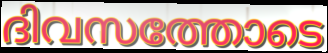
ദിവസത്തോടെ